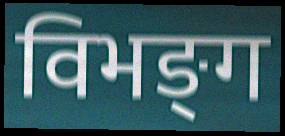
विभङ्ग